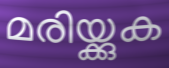
മരിയ്ക്കുക